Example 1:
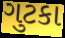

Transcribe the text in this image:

ગુટકા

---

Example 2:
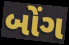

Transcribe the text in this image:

બોંગ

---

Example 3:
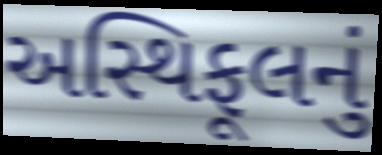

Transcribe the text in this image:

અસ્થિફૂલનું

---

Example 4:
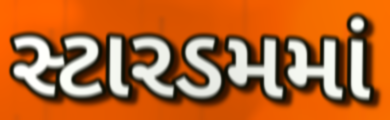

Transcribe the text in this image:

સ્ટારડમમાં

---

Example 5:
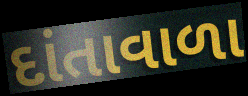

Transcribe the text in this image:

દાંતાવાળા